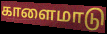
காளைமாடு